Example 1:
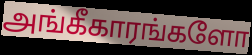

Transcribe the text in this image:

அங்கீகாரங்களோ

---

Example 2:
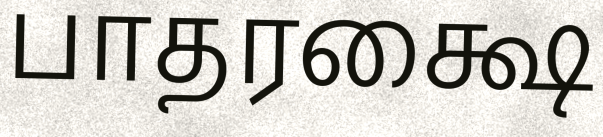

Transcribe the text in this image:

பாதரக்ஷை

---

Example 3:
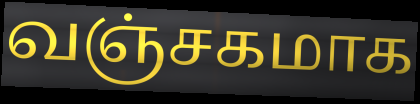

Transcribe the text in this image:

வஞ்சகமாக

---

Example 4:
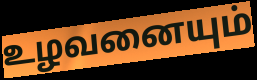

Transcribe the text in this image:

உழவனையும்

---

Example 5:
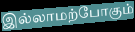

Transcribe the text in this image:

இல்லாமற்போகும்